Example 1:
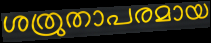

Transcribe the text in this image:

ശത്രുതാപരമായ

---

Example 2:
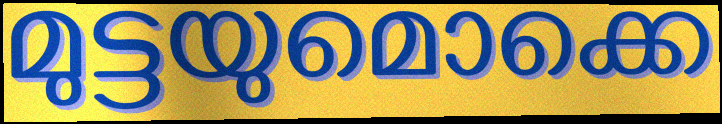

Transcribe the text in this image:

മുട്ടയുമൊക്കെ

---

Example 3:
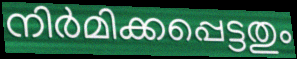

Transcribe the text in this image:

നിർമിക്കപ്പെട്ടതും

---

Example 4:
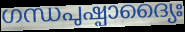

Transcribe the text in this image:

ഗന്ധപുഷ്പാദ്യൈഃ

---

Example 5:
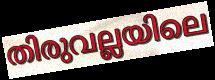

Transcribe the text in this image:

തിരുവല്ലയിലെ